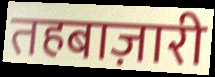
तहबाज़ारी